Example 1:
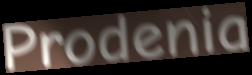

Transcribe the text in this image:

Prodenia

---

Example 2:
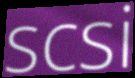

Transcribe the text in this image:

scsi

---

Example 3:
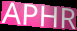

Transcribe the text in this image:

APHR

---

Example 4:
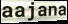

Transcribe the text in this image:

aajana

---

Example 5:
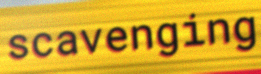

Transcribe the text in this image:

scavenging